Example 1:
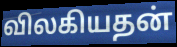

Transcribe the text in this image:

விலகியதன்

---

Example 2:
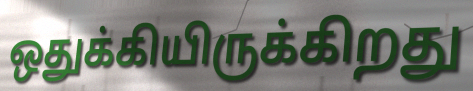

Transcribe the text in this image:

ஒதுக்கியிருக்கிறது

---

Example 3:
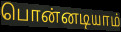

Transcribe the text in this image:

பொன்னடியாம்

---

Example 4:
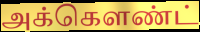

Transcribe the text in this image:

அக்கெளண்ட்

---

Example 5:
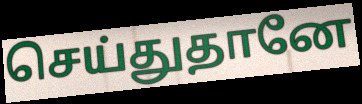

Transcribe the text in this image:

செய்துதானே